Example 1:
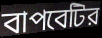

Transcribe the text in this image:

বাপবেটির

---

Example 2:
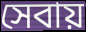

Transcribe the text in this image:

সেবায়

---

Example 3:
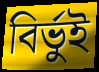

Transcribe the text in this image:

বির্ভুই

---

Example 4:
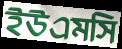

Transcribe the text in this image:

ইউএমসি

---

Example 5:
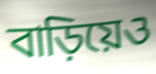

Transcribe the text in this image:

বাড়িয়েও